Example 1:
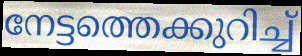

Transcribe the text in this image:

നേട്ടത്തെക്കുറിച്ച്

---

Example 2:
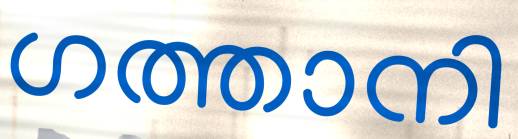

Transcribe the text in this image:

ഗത്താനി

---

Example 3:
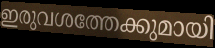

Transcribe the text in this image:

ഇരുവശത്തേക്കുമായി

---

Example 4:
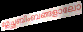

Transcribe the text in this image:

മ്ലേച്ഛബിംബങ്ങളാലോ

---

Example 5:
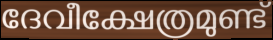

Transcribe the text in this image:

ദേവീക്ഷേത്രമുണ്ട്